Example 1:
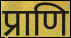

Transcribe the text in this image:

प्राणि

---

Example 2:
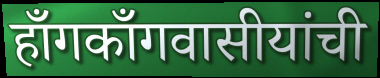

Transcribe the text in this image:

हाँगकाँगवासीयांची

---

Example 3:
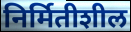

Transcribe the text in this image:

निर्मितीशील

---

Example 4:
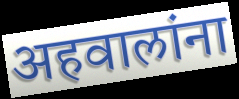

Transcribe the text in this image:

अहवालांना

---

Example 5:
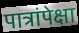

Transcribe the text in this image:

पात्रांपेक्षा